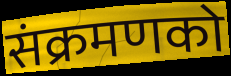
संक्रमणको